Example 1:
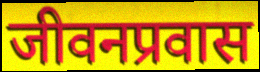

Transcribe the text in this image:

जीवनप्रवास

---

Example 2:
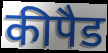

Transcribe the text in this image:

कीपैड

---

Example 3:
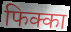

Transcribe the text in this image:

फिक्का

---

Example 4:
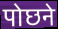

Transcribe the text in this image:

पोछने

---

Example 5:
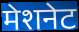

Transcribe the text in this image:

मेशनेट